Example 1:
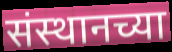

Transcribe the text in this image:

संस्थानच्या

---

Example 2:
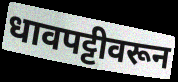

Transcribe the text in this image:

धावपट्टीवरून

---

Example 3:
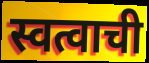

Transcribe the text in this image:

स्वत्वाची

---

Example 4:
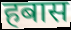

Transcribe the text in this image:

हबास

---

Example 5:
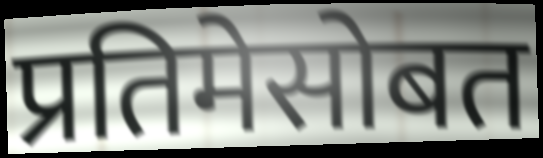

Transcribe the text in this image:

प्रतिमेसोबत